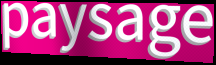
paysage